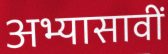
अभ्यासावीं